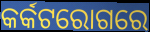
କର୍କଟରୋଗରେ